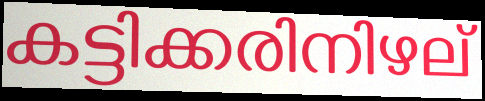
കട്ടിക്കരിനിഴല്